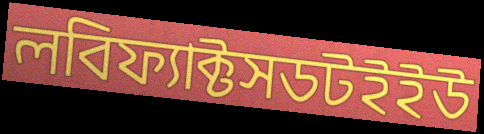
লবিফ্যাক্টসডটইইউ